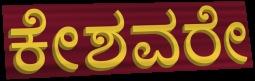
ಕೇಶವರೇ